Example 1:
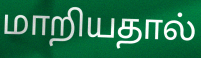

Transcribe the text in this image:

மாறியதால்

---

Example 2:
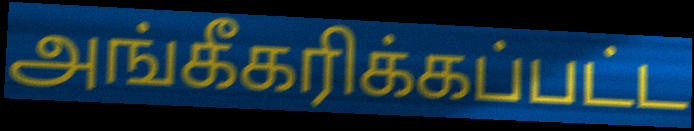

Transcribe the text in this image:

அங்கீகரிக்கப்பட்ட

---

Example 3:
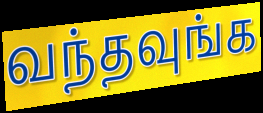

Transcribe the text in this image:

வந்தவுங்க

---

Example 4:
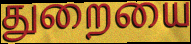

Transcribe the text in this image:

துறையை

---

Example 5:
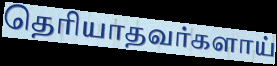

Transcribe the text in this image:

தெரியாதவர்களாய்